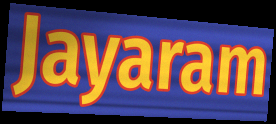
Jayaram